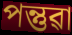
পন্তুৱা